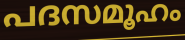
പദസമൂഹം